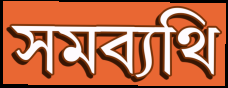
সমব্যথি